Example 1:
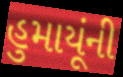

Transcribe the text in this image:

હુમાયૂંની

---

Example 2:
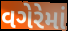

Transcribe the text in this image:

વગેરેમાં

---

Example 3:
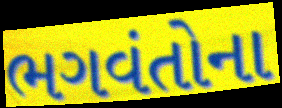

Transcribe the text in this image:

ભગવંતોના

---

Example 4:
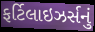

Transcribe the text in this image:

ફર્ટિલાઇઝર્સનું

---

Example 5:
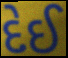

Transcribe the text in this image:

દેઈ